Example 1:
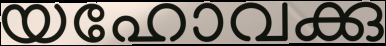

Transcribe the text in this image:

യഹോവക്കു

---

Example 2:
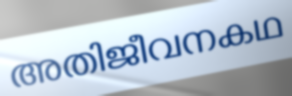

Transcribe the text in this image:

അതിജീവനകഥ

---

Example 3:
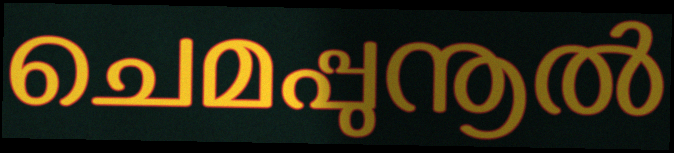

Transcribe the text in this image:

ചെമപ്പുനൂൽ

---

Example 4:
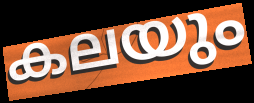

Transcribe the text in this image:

കലയും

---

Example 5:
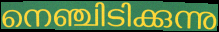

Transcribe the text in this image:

നെഞ്ചിടിക്കുന്നു